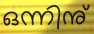
ഒന്നിനു്